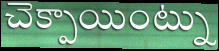
చెక్పాయింట్ను